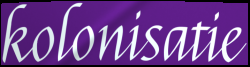
kolonisatie